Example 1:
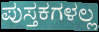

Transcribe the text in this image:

ಪುಸ್ತಕಗಳಲ್ಲ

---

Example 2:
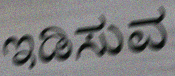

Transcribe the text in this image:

ಇಡಿಸುವ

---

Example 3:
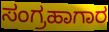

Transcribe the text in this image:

ಸಂಗ್ರಹಾಗಾರ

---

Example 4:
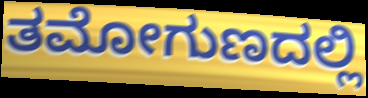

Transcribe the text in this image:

ತಮೋಗುಣದಲ್ಲಿ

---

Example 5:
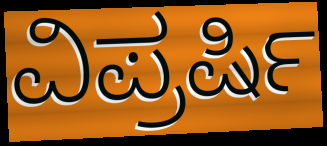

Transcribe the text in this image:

ವಿಪ್ರರ್ಷಿ